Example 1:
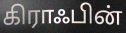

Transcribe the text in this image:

கிராஃபின்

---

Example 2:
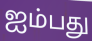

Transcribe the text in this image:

ஐம்பது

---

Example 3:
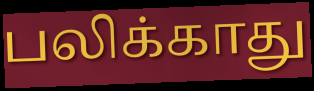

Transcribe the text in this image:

பலிக்காது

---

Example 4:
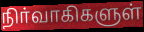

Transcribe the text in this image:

நிர்வாகிகளுள்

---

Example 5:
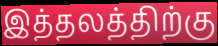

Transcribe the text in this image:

இத்தலத்திற்கு